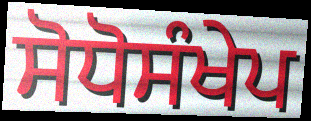
ਸੋਧੋਸੰਖੇਪ